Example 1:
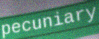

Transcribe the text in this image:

pecuniary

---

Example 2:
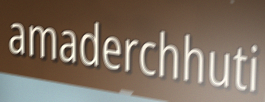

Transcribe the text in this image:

amaderchhuti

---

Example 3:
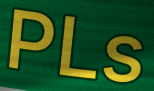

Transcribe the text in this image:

PLs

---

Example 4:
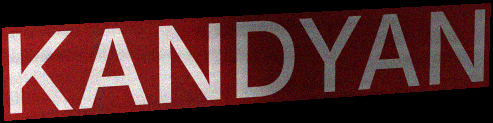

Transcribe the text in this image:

KANDYAN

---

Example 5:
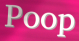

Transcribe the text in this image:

Poop